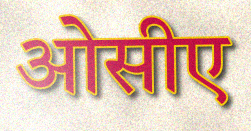
ओसीए